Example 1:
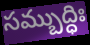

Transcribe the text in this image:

సమ్బుద్ధిః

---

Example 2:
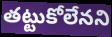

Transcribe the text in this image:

తట్టుకోలేనని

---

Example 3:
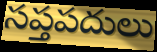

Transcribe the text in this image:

సప్తపదులు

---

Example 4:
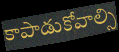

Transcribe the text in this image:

కాపాడుకోవాల్సి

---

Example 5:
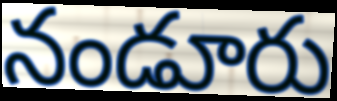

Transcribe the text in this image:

నండూరు